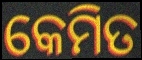
କେମିତ